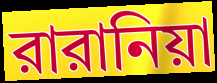
রারানিয়া